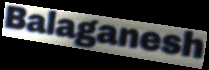
Balaganesh